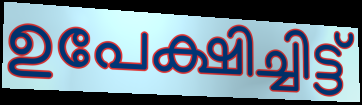
ഉപേക്ഷിച്ചിട്ട്